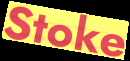
Stoke